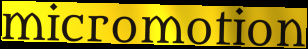
micromotion